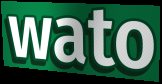
wato